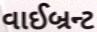
વાઈબ્રન્ટ